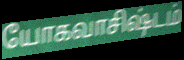
யோகவாசிஷ்டம்